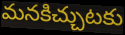
మనకిచ్చుటకు